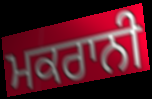
ਮਕਰਾਨੀ